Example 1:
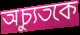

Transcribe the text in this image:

অচ্যুতকে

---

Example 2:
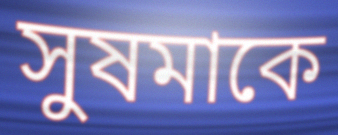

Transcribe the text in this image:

সুষমাকে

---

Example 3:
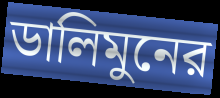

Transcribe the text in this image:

ডালিমুনের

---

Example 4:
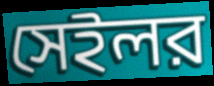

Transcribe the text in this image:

সেইলর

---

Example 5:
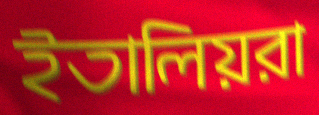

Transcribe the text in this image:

ইতালিয়রা